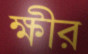
ক্ষীর